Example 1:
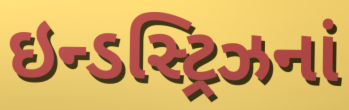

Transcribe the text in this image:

ઇન્ડસ્ટ્રિઝનાં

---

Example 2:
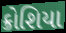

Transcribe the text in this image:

ક્રોશિયા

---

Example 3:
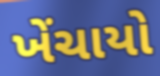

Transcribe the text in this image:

ખેંચાયો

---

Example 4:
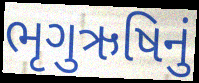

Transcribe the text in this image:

ભૃગુઋષિનું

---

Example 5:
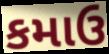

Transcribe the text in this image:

કમાઉ